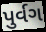
પુર્વગ